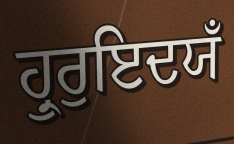
ਹ੍ਰੁਰੁਇਦਯਁ